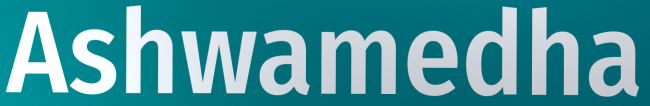
Ashwamedha